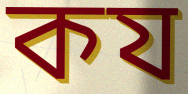
কয